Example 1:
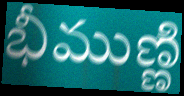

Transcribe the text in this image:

భీముణ్ణి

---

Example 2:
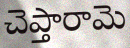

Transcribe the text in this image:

చెప్తారామె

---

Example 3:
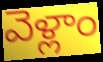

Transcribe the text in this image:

వెళ్లాం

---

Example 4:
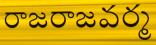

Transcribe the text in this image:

రాజరాజవర్మ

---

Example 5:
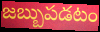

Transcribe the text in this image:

జబ్బుపడటం